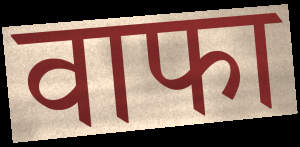
वाफा